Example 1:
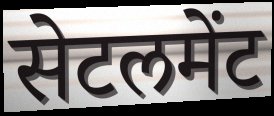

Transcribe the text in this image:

सेटलमेंट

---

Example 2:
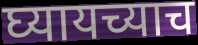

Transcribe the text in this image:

घ्यायच्याच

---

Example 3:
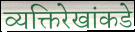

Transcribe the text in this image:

व्यक्तिरेखांकडे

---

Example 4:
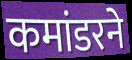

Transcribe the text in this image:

कमांडरने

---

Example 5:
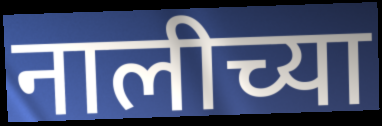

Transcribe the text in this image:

नालीच्या